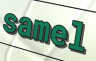
samel